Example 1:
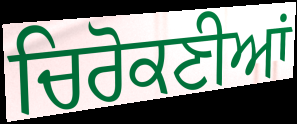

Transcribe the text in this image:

ਚਿਰੋਕਣੀਆਂ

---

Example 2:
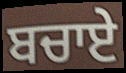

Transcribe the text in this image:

ਬਚਾਏ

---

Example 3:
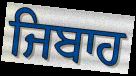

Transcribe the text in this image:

ਜਿਬਾਹ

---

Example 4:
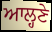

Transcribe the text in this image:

ਆਲ੍ਹਣੇ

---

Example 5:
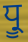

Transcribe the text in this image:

ਧ੍ਰੂ